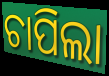
ଚାପିଲା